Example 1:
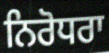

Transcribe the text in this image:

ਨਿਰੋਧਰਾ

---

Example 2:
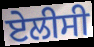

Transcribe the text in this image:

ਏਲੀਸੀ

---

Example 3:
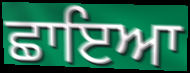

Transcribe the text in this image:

ਛਾਇਆ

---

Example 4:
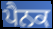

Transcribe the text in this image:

ਪੈਨਕ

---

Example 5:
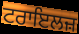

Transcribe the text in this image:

ਟਰਾਇਲਜ਼